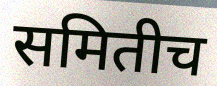
समितीच